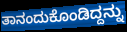
ತಾನಂದುಕೊಂಡಿದ್ದನ್ನು